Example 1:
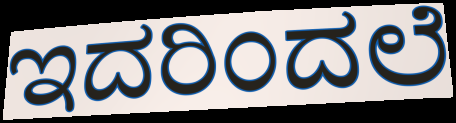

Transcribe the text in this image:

ಇದರಿಂದಲೆ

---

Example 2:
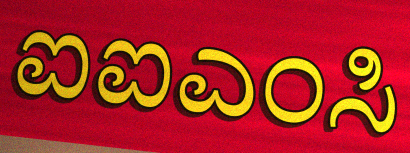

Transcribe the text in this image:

ಐಐಎಂಸಿ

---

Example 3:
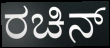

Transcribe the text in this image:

ರಚಿನ್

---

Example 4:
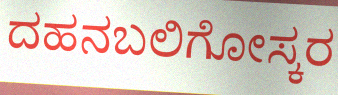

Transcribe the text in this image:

ದಹನಬಲಿಗೋಸ್ಕರ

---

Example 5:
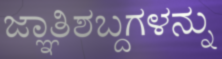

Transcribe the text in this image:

ಜ್ಞಾತಿಶಬ್ದಗಳನ್ನು